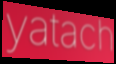
yatach